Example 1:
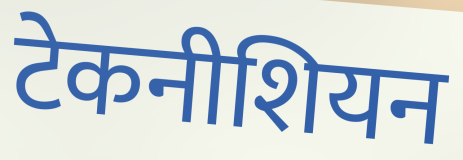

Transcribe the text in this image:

टेकनीशियन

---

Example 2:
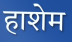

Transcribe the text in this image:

हाशेम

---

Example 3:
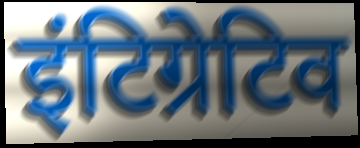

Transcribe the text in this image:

इंटिग्रेटिव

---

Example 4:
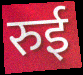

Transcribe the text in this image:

रुई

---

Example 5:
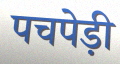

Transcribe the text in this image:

पचपेड़ी